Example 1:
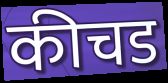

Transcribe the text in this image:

कीचड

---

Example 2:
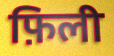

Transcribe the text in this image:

फ़िली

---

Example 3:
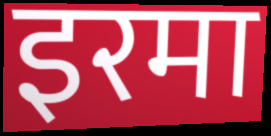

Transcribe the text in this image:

इरमा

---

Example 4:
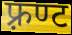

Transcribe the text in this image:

फ़्रण्ट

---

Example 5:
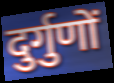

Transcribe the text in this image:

दुर्गुणों